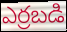
ఎర్రబడి